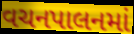
વચનપાલનમાં